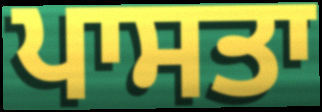
ਪਾਸਤਾ